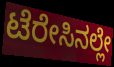
ಟೆರೇಸಿನಲ್ಲೇ